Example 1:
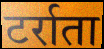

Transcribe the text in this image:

टर्राता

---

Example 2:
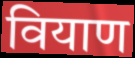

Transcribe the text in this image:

वियाण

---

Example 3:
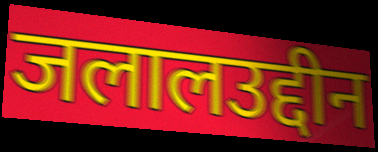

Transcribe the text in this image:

जलालउद्दीन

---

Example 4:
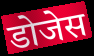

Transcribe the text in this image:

डोजेस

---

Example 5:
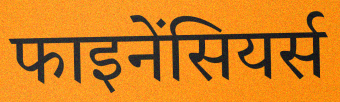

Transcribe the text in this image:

फाइनेंसियर्स